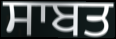
ਸਾਬਤ